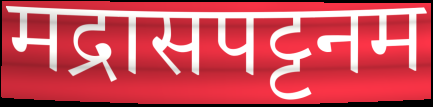
मद्रासपट्टनम